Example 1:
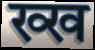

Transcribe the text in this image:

ख्ख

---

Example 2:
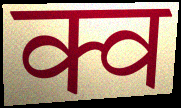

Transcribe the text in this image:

क्व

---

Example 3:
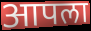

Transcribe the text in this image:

आपला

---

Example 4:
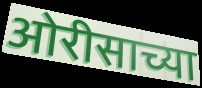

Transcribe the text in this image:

ओरीसाच्या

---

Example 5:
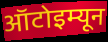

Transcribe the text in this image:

ऑटोइम्यून